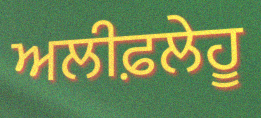
ਅਲੀਫ਼ਲੇਹੂ